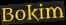
Bokim